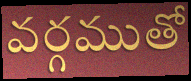
వర్గముతో